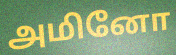
அமினோ